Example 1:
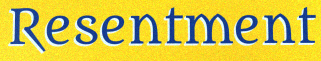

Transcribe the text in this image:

Resentment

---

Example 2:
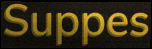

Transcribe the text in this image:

Suppes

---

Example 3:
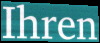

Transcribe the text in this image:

Ihren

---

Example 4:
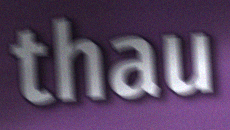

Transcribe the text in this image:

thau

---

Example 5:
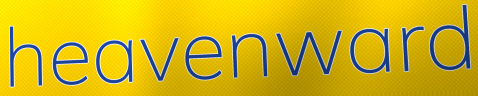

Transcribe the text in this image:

heavenward